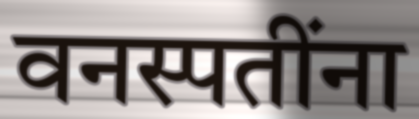
वनस्‍पतींना